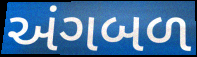
અંગબળ